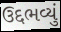
ઉદ્દભવ્યું